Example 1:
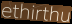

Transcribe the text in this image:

ethirthu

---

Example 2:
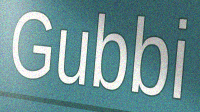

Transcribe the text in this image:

Gubbi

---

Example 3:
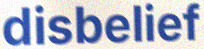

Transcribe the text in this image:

disbelief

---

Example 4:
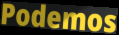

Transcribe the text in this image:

Podemos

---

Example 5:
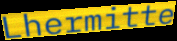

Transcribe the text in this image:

Lhermitte